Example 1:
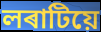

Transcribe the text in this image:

লৰাটিয়ে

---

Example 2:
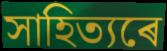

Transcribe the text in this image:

সাহিত্যৰে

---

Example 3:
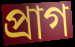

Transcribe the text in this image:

প্ৰাগ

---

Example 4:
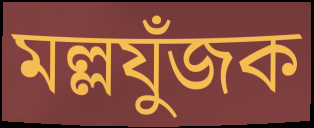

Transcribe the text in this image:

মল্লযুঁজক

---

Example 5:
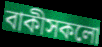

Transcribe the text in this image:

বাকীসকলো